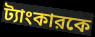
ট্যাংকারকে